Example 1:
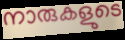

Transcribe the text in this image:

നാരുകളുടെ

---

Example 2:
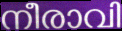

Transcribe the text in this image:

നീരാവി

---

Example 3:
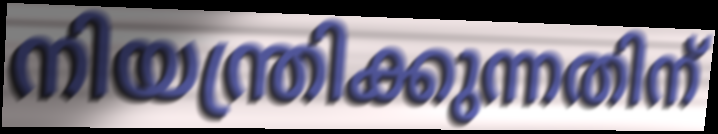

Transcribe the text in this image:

നിയന്ത്രിക്കുന്നതിന്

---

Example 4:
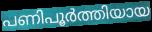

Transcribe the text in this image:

പണിപൂർത്തിയായ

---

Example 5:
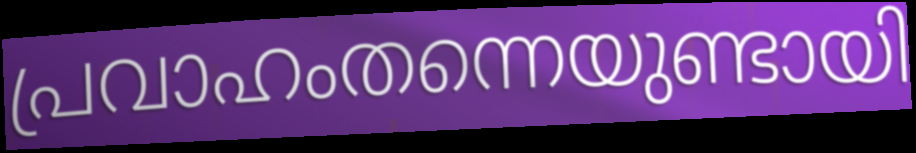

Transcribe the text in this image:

പ്രവാഹംതന്നെയുണ്ടായി